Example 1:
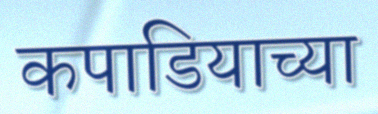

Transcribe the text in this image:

कपाडियाच्या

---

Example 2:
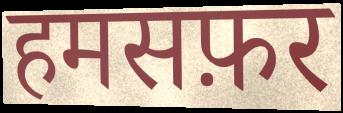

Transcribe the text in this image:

हमसफ़र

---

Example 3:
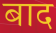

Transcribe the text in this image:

बाद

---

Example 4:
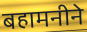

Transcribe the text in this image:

बहामनीने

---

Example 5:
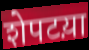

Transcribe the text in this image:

शेपटय़ा